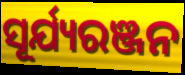
ସୂର୍ଯ୍ୟରଞ୍ଜନ